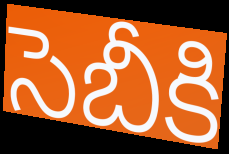
సెబీకి